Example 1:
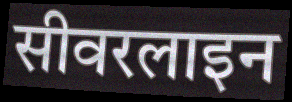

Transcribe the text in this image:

सीवरलाइन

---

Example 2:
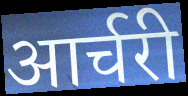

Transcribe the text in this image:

आर्चरी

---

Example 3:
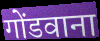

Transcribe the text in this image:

गोंडवाना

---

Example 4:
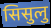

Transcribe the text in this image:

सिसुलु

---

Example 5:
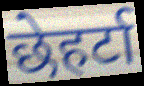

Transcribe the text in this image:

छेहर्टा